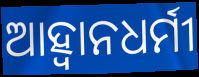
ଆହ୍ବାନଧର୍ମୀ